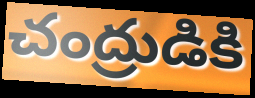
చంద్రుడికి